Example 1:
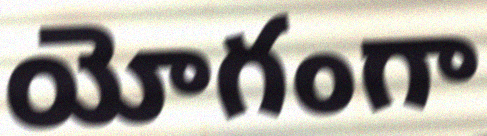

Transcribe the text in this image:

యోగంగా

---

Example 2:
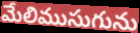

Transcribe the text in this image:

మేలిముసుగును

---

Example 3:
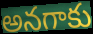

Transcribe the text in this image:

అనగాకు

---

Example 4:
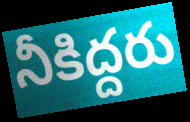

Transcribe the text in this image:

నీకిద్దరు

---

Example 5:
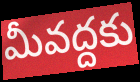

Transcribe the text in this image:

మీవద్దకు